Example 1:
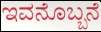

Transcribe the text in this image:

ಇವನೊಬ್ಬನೆ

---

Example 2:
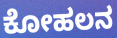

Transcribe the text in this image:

ಕೋಹಲನ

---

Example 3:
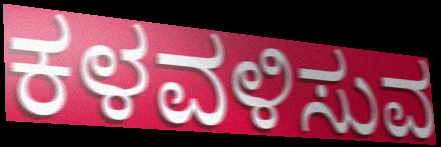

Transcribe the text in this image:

ಕಳವಳಿಸುವ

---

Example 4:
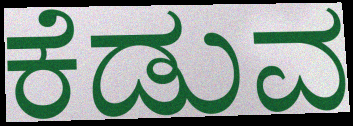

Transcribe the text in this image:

ಕೆಡುವ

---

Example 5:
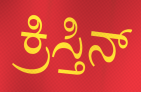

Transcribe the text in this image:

ಕ್ರಿಸ್ತಿನ್